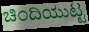
ಚಿಂದಿಯುಟ್ಟ